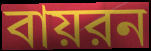
বায়রন